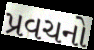
પ્રવચનો